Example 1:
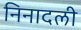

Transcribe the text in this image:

निनादली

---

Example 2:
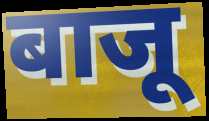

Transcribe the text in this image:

बाजू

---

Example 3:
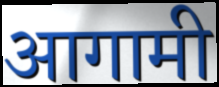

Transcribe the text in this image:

आगामी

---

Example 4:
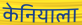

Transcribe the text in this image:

केनियाला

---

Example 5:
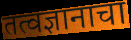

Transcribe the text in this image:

तत्वज्ञानाचा